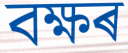
বক্ষৰ